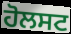
ਹੋਲਸਟ